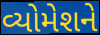
વ્યોમેશને